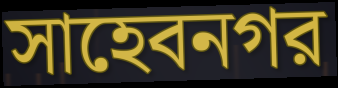
সাহেবনগর